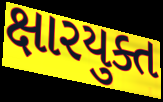
ક્ષારયુક્ત